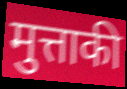
मुत्ताकी